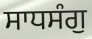
ਸਾਧਸੰਗੁ